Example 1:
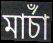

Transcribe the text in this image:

মার্চাঁ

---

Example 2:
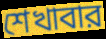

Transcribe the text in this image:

শেখাবার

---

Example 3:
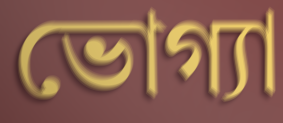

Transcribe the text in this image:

ভোগ্যা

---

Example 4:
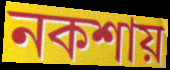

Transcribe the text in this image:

নকশায়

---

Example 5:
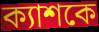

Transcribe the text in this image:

ক্যাশকে